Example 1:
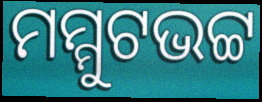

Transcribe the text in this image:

ମମ୍ମୁଟଭଟ୍ଟ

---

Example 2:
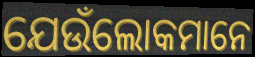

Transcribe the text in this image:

ଯେଉଁଲୋକମାନେ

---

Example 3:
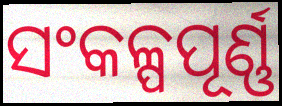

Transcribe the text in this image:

ସଂକଳ୍ପପୂର୍ଣ୍ଣ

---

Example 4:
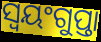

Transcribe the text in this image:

ସ୍ୱୟଂଗୁପ୍ତା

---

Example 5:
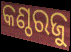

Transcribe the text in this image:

କଣ୍ଠରଜୁ